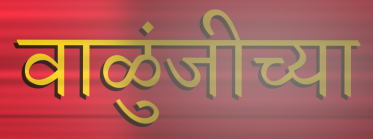
वाळुंजीच्या